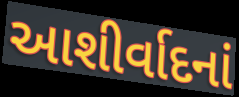
આશીર્વાદનાં